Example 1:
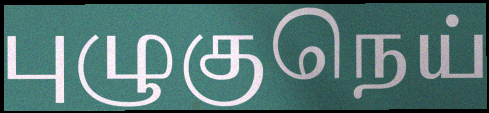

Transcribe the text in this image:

புழுகுநெய்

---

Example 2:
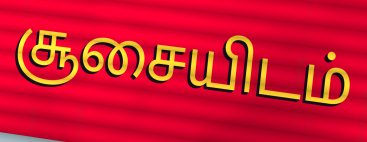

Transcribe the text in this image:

சூசையிடம்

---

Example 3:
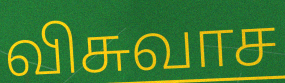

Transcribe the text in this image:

விசுவாச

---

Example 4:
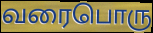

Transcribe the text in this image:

வரைபொரு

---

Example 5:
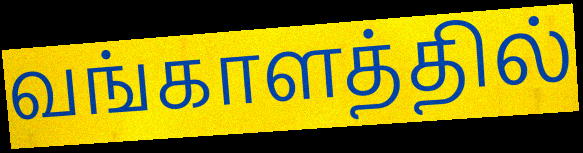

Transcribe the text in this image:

வங்காளத்தில்